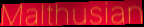
Malthusian